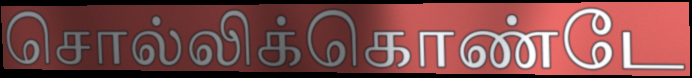
சொல்லிக்கொண்டே